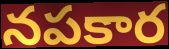
నపకార